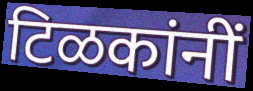
टिळकांनीं